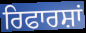
ਰਿਫਾਰਸ਼ਾਂ